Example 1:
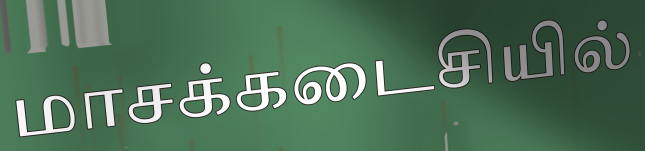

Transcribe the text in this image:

மாசக்கடைசியில்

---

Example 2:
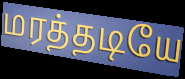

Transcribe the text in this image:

மரத்தடியே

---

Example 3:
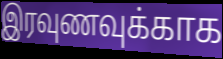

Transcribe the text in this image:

இரவுணவுக்காக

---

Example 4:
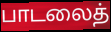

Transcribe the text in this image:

பாடலைத்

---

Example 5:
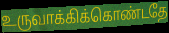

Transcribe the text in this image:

உருவாக்கிக்கொண்டதே